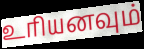
உரியனவும்